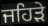
ਜਹਿੜੇ